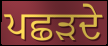
ਪਛੜਦੇ